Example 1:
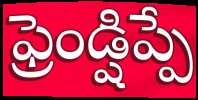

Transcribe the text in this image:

ఫ్రెండ్షిప్పే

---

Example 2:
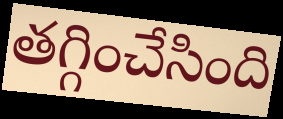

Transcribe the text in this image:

తగ్గించేసింది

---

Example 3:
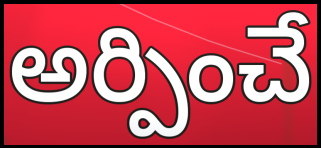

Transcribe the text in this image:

అర్పించే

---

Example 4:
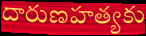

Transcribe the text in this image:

దారుణహత్యకు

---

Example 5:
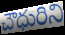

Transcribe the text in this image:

చౌధురిని